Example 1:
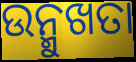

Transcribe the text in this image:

ଉନ୍ମୁଖତା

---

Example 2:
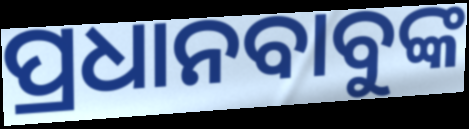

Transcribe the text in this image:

ପ୍ରଧାନବାବୁଙ୍କ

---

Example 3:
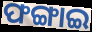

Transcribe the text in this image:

ଫଙ୍ଗାଇ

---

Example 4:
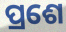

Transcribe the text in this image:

ପ୍ରଶେ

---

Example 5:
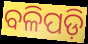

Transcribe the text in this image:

ବଳିପଡ଼ି